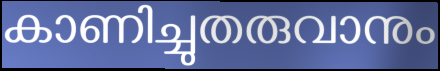
കാണിച്ചുതരുവാനും